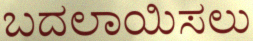
ಬದಲಾಯಿಸಲು